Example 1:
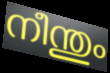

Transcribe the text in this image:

നീന്തും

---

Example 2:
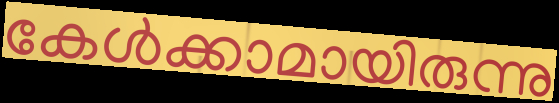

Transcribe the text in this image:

കേൾക്കാമായിരുന്നു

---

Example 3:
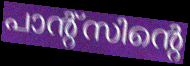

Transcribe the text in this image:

പാന്റ്സിന്റെ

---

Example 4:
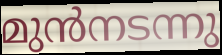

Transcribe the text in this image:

മുൻനടന്നു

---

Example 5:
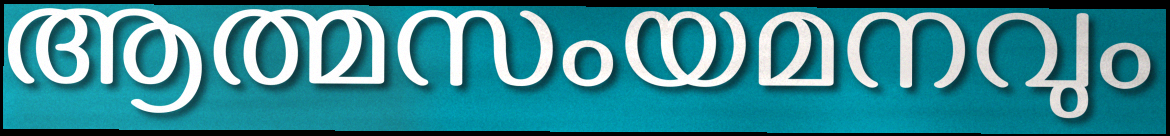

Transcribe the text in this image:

ആത്മസംയമനവും